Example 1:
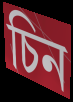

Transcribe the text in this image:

চিন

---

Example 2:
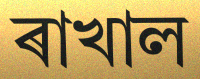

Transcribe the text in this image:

ৰাখাল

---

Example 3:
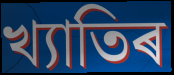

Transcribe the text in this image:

খ্যাতিৰ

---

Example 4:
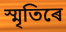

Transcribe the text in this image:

স্মৃতিৰে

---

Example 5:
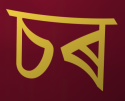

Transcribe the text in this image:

চৰ